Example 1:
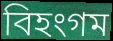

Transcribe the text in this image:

বিহংগম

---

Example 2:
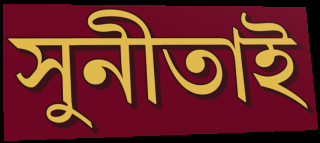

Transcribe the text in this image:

সুনীতাই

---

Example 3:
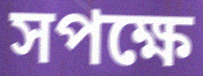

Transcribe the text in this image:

সপক্ষে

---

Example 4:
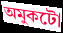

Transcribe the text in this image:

অমুকটো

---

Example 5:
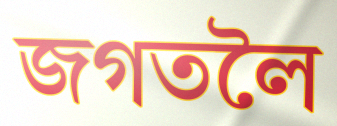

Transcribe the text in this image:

জগতলৈ